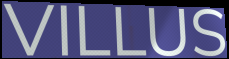
VILLUS